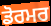
ਡੋਰਮਰ